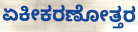
ಏಕೀಕರಣೋತ್ತರ